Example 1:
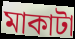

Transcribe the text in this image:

মাকাটা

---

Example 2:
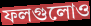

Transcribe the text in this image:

ফলগুলোও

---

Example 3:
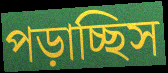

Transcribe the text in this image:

পড়াচ্ছিস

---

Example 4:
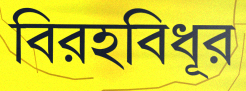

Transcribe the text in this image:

বিরহবিধূর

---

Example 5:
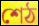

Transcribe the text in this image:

শেঠ